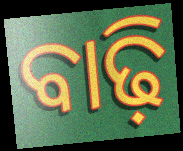
ବାଢ଼ି